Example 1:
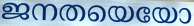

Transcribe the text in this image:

ജനതയെയോ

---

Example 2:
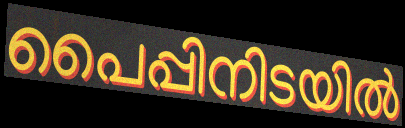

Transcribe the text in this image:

പൈപ്പിനിടയിൽ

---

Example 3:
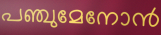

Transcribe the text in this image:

പഞ്ചുമേനോൻ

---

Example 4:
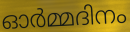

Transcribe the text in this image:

ഓർമ്മദിനം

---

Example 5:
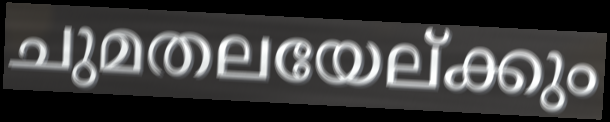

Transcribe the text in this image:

ചുമതലയേല്ക്കും